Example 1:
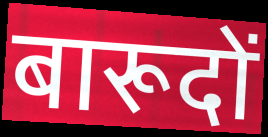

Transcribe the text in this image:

बारूदों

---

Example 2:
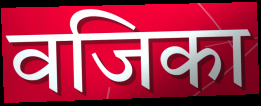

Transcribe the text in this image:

वजिका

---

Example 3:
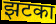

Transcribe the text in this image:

झटका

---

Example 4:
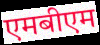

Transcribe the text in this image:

एमबीएम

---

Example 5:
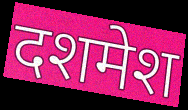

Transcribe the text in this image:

दशमेश